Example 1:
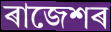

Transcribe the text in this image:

ৰাজেশৰ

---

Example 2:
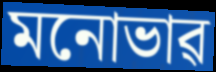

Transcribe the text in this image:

মনোভাৱ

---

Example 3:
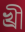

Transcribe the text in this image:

খ্ৰী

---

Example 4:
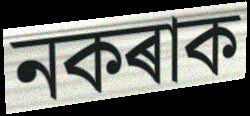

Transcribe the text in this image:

নকৰাক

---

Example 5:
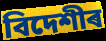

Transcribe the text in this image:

বিদেশীৰ